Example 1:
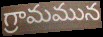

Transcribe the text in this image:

గ్రామమున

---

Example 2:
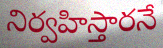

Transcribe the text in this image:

నిర్వహిస్తారనే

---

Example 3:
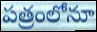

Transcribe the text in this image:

పత్రంలోనూ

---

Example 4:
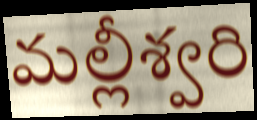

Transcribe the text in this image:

మల్లీశ్వరి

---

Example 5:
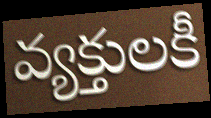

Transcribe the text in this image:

వ్యక్తులకీ